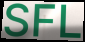
SFL